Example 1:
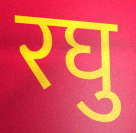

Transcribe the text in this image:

रघु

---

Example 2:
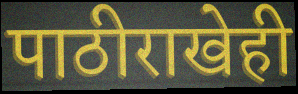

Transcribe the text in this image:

पाठीराखेही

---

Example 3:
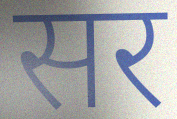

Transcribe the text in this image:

सर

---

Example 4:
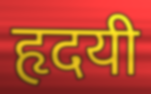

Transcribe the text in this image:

हृदयी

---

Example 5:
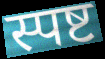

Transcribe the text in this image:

स्पष्ट